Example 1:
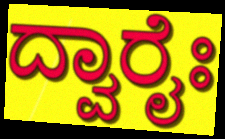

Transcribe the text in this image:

ದ್ವಾರೈಃ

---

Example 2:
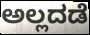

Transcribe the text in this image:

ಅಲ್ಲದಡೆ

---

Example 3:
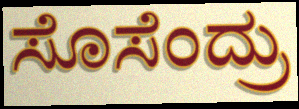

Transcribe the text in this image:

ಸೊಸೆಂದ್ರು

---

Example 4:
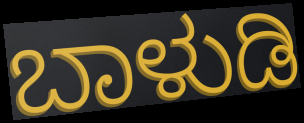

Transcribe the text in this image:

ಬಾಳುಡಿ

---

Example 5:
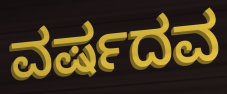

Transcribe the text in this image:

ವರ್ಷದವ